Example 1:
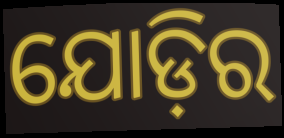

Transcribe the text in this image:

ଯୋଡ଼ିର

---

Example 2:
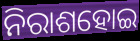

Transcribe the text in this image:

ନିରାଶହୋଇ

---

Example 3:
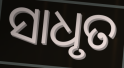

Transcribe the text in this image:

ସାଧୃତ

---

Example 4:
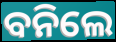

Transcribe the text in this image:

ବନିଲେ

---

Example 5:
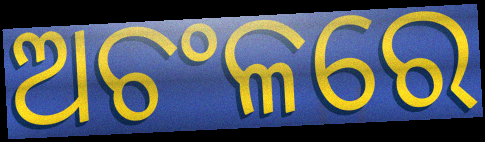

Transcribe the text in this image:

ଅଚଂଳରେ